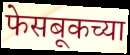
फेसबूकच्या